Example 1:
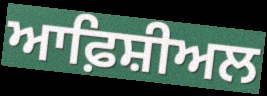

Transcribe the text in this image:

ਆਫ਼ਿਸ਼ੀਅਲ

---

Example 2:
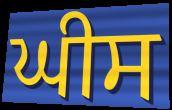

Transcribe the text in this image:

ਘੀਸ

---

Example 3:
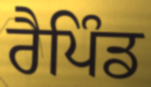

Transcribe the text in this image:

ਰੈਪਿੰਡ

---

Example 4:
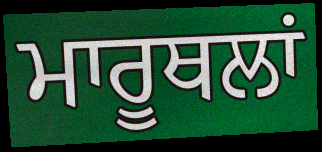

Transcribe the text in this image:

ਮਾਰੂਥਲਾਂ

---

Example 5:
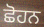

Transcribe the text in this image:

ਛੋਹਨ